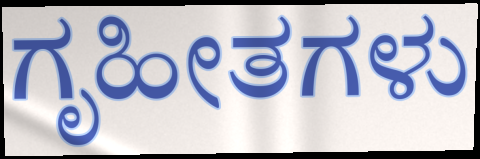
ಗೃಹೀತಗಳು